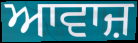
ਆਵਾਜ਼